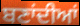
ਬਣਾਂਦੀਆਂ